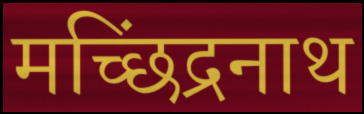
मच्छिंद्रनाथ